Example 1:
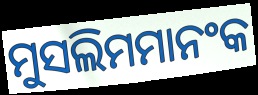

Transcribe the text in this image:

ମୁସଲିମମାନଂକ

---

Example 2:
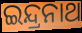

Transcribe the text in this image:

ଇନ୍ଦ୍ରନାଥ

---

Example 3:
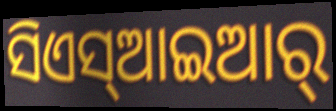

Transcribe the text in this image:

ସିଏସ୍ଆଇଆର୍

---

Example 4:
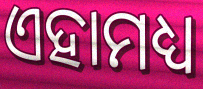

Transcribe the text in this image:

ଏହାମଧ୍ୟ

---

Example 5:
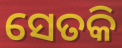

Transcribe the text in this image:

ସେତକି